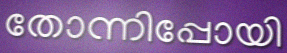
തോന്നിപ്പോയി